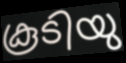
കൂടിയു